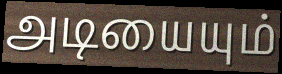
அடியையும்